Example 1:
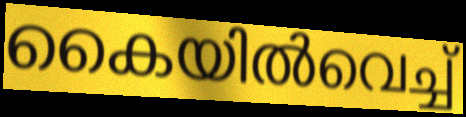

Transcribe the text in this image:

കൈയിൽവെച്ച്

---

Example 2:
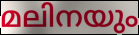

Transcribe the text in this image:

മലിനയും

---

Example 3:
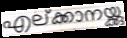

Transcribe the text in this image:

എല്ക്കാനയ്ക്കു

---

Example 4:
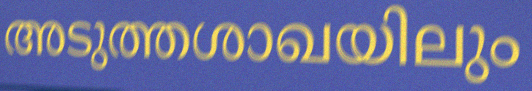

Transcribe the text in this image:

അടുത്തശാഖയിലും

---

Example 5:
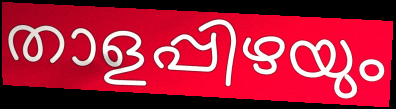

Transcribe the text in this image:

താളപ്പിഴയും